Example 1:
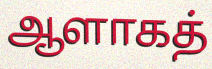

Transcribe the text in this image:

ஆளாகத்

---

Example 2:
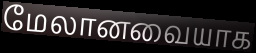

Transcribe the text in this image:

மேலானவையாக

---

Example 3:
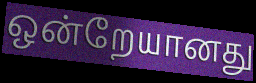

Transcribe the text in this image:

ஒன்றேயானது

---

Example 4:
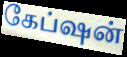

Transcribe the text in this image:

கேப்ஷன்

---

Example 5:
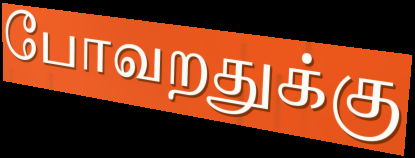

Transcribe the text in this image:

போவறதுக்கு